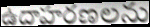
ఉదాహరణలను